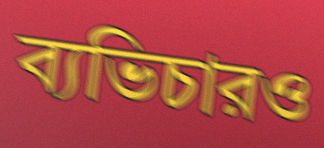
ব্যভিচারও